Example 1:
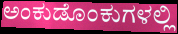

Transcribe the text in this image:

ಅಂಕುಡೊಂಕುಗಳಲ್ಲಿ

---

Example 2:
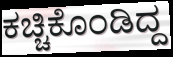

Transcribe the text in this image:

ಕಚ್ಚಿಕೊಂಡಿದ್ದ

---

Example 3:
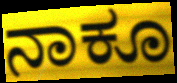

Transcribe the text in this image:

ನಾಕೂ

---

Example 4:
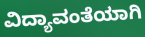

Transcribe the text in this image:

ವಿದ್ಯಾವಂತೆಯಾಗಿ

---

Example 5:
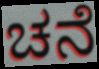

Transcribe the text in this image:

ಚನೆ